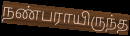
நண்பராயிருந்த